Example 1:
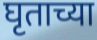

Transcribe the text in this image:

घृताच्या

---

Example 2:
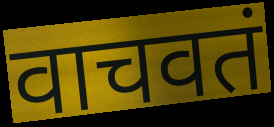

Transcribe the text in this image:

वाचवतं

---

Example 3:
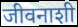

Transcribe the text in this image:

जीवनाशी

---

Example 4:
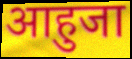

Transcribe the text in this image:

आहुजा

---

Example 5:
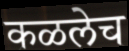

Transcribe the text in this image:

कळलेच